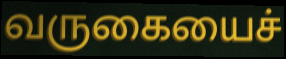
வருகையைச்